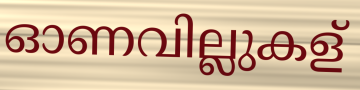
ഓണവില്ലുകള്